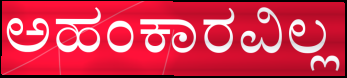
ಅಹಂಕಾರವಿಲ್ಲ